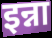
इन्ना